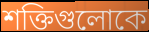
শক্তিগুলোকে